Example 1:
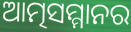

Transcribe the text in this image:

ଆତ୍ମସମ୍ମାନର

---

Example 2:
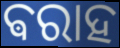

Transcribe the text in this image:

ଵରାହ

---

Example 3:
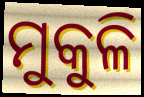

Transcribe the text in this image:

ମୁକୁଳି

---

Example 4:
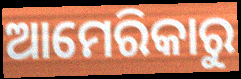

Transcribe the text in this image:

ଆମେରିକାରୁ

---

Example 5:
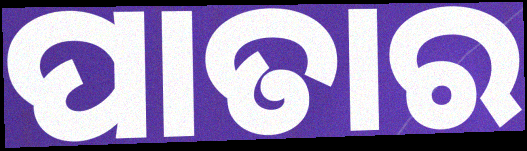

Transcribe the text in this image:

ପାତାର